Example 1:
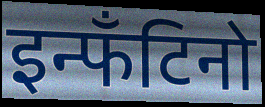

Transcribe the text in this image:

इन्फँटिनो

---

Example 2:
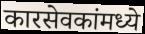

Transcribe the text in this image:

कारसेवकांमध्ये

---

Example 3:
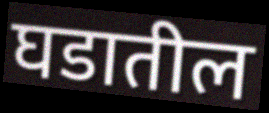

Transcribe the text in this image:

घडातील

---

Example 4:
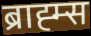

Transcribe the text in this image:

ब्राह्म्स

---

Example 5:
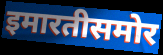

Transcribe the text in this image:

इमारतीसमोर